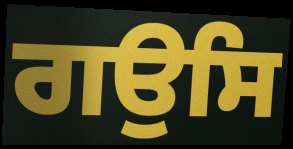
ਗਉਸਿ